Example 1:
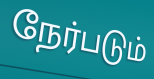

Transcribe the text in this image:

நேர்படும்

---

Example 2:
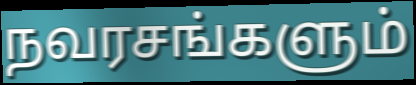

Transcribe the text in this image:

நவரசங்களும்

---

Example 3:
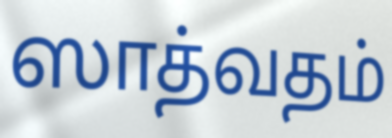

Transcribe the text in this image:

ஸாத்வதம்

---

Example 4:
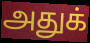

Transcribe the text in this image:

அதுக்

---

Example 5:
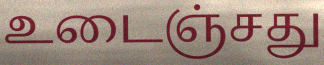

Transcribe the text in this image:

உடைஞ்சது